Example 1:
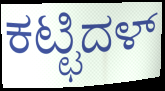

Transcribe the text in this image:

ಕಟ್ಟಿದಳ್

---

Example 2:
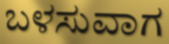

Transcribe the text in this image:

ಬಳಸುವಾಗ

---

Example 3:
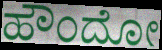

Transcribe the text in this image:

ಹೌಂದೋ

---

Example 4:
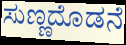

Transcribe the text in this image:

ಸುಣ್ಣದೊಡನೆ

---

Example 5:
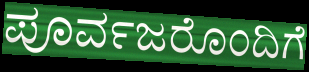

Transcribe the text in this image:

ಪೂರ್ವಜರೊಂದಿಗೆ